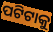
ପଟିଟାକୁ